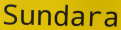
Sundara